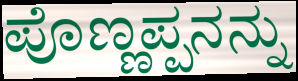
ಪೊಣ್ಣಪ್ಪನನ್ನು